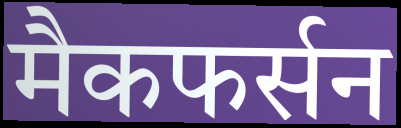
मैकफर्सन